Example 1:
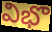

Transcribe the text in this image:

విభొ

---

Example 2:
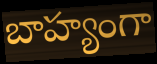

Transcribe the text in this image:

బాహ్యంగా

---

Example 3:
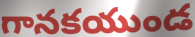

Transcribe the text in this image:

గానకయుండ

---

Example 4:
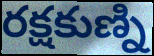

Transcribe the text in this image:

రక్షకుణ్ని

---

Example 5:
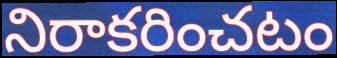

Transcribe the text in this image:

నిరాకరించటం